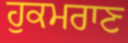
ਹੁਕਮਰਾਣ